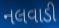
નલવાડી